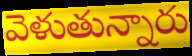
వెళుతున్నారు